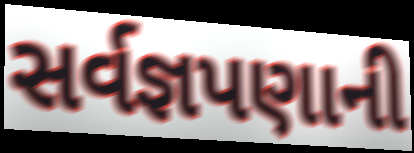
સર્વજ્ઞપણાની